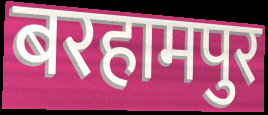
बरहामपुर